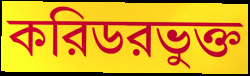
করিডরভুক্ত